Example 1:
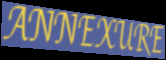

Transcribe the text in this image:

ANNEXURE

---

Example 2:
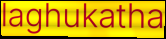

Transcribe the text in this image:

laghukatha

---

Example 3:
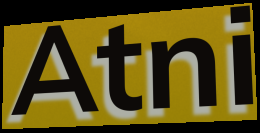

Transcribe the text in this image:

Atni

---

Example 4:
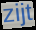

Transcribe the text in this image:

zijt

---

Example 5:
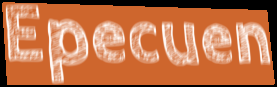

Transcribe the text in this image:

Epecuen